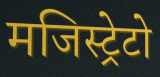
मजिस्ट्रेटो